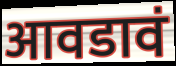
आवडावं